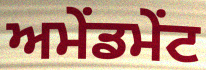
ਅਮੇਂਡਮੇਂਟ